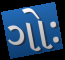
ગોઃ